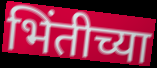
भिंतीच्या